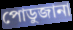
পোডুজানা